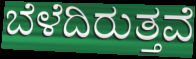
ಬೆಳೆದಿರುತ್ತವೆ